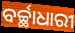
ବର୍ଚ୍ଛାଧାରୀ